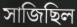
সাজিছিল